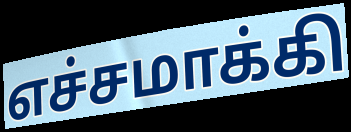
எச்சமாக்கி